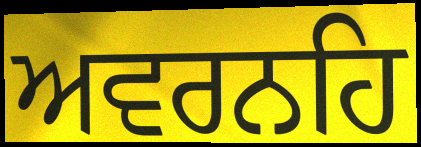
ਅਵਰਨਹਿ